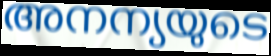
അനന്യയുടെ